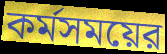
কর্মসময়ের